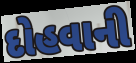
દોહવાની